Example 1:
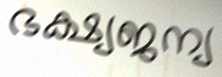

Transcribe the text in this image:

ഭക്ഷ്യജന്യ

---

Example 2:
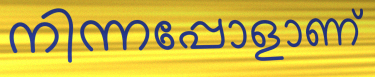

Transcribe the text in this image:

നിന്നപ്പോളാണ്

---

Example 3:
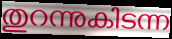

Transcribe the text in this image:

തുറന്നുകിടന്ന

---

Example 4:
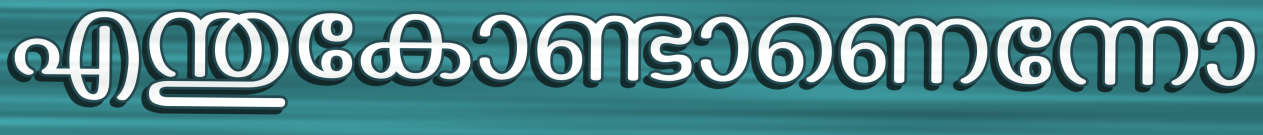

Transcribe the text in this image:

എന്തുകോണ്ടാണെന്നോ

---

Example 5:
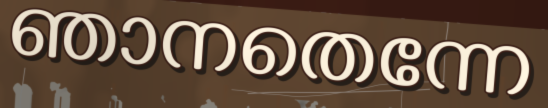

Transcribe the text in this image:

ഞാനതെന്നേ